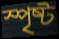
স্পৃষ্ট